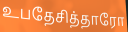
உபதேசித்தாரோ